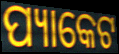
ପ୍ୟାକେଟ